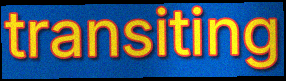
transiting